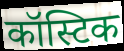
कॉस्टिक